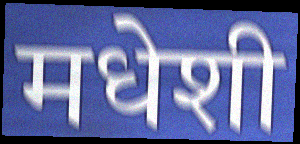
मधेशी